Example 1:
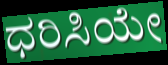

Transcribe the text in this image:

ಧರಿಸಿಯೇ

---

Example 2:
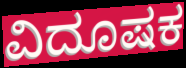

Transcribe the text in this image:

ವಿದೂಷಕ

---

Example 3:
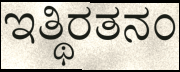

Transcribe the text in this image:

ಇತ್ಥಿರತನಂ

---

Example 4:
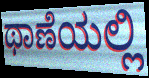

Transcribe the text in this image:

ಥಾಣೆಯಲ್ಲಿ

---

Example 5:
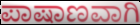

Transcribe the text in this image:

ಪಾಷಾಣವಾಗಿ